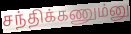
சந்திக்கணும்னு